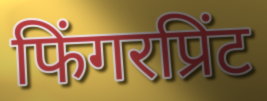
फिंगरप्रिंट